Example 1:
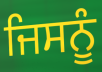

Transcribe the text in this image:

ਜਿਸਨੂੰ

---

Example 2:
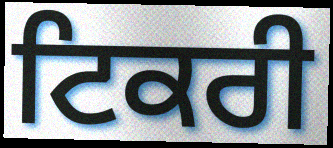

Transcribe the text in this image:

ਟਿਕਰੀ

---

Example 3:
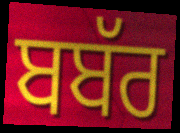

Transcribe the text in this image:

ਬਬੱਰ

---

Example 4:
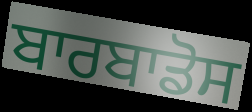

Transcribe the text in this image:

ਬਾਰਬਾਡੋਸ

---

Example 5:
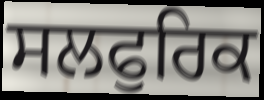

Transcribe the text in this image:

ਸਲਫੁਰਿਕ